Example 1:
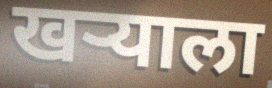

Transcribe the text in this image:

खर्‍याला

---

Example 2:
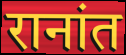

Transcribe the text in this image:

रानांत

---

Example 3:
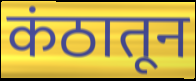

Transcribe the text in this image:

कंठातून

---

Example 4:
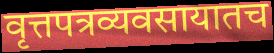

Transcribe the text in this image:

वृत्तपत्रव्यवसायातच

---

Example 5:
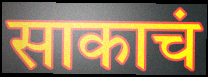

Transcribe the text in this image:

साकाचं